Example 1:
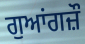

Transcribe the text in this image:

ਗੁਆਂਗਜ਼ੌ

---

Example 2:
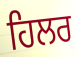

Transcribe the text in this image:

ਹਿਲਰ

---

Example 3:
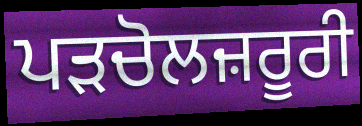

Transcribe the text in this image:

ਪੜਚੋਲਜ਼ਰੂਰੀ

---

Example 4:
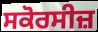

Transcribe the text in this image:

ਸਕੋਰਸੀਜ਼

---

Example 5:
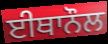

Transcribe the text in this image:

ਈਥਾਨੌਲ